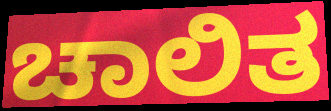
ಚಾಲಿತ